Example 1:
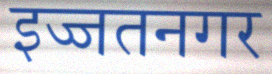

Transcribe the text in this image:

इज्जतनगर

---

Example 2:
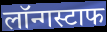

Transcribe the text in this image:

लॉन्गस्टाफ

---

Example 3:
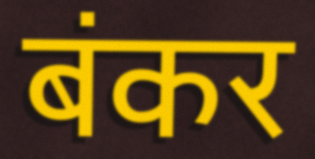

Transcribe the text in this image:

बंकर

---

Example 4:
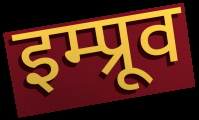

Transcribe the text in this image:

इम्प्रूव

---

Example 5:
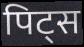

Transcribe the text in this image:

पिट्स